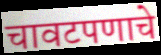
चावटपणाचे